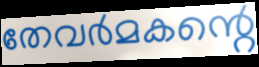
തേവർമകന്റെ